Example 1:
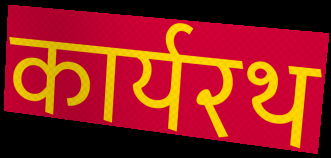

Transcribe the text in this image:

कार्यरथ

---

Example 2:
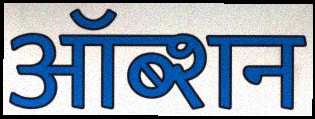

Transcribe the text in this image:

ऑब्शन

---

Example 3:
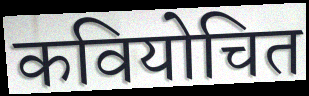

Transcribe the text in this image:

कवियोचित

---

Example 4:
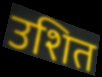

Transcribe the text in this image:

उशित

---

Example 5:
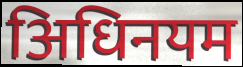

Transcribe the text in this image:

अिधिनयम